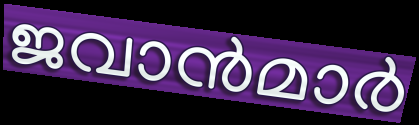
ജവാൻമാർ